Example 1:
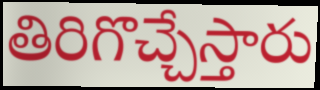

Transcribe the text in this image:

తిరిగొచ్చేస్తారు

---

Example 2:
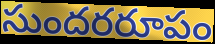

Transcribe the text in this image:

సుందరరూపం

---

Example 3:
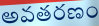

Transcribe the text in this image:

అవతరణం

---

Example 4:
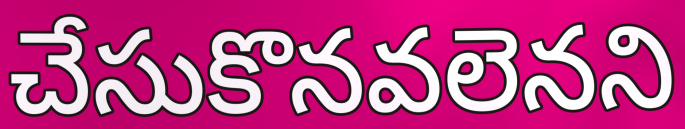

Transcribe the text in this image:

చేసుకొనవలెనని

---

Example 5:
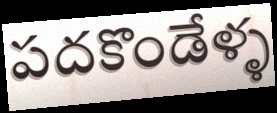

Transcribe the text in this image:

పదకొండేళ్ళ